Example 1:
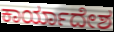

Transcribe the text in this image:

ಕಾರ್ಯಾದೇಶ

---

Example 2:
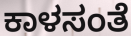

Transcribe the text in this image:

ಕಾಳಸಂತೆ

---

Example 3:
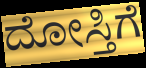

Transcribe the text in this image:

ದೋಸ್ತಿಗೆ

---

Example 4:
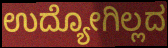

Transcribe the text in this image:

ಉದ್ಯೋಗಿಲ್ಲದ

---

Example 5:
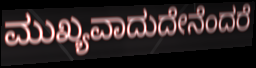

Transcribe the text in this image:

ಮುಖ್ಯವಾದುದೇನೆಂದರೆ